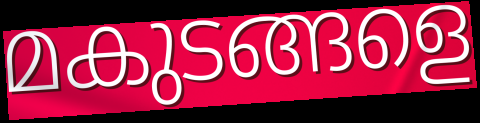
മകുടങ്ങളെ